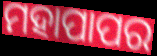
ମହାପାପର